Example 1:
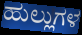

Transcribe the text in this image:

ಹುಲ್ಲುಗಳ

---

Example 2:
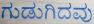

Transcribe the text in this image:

ಗುಡುಗಿದವು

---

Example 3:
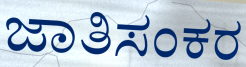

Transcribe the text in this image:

ಜಾತಿಸಂಕರ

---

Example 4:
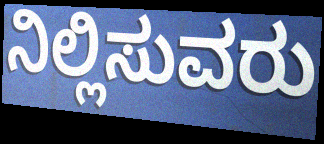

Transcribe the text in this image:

ನಿಲ್ಲಿಸುವರು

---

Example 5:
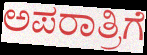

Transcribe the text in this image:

ಅಪರಾತ್ರಿಗೆ